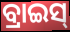
ବ୍ରାଇସ୍